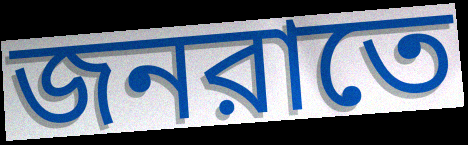
জনরাতে